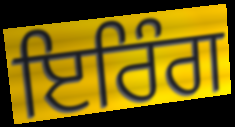
ਇਰਿੰਗ